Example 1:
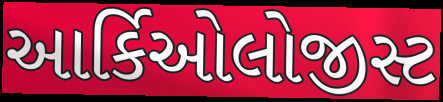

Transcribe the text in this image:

આર્કિઓલોજીસ્ટ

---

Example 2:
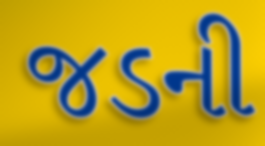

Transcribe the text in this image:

જડની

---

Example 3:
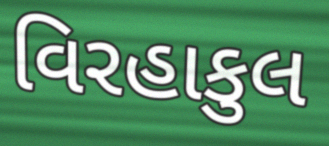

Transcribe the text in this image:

વિરહાકુલ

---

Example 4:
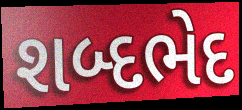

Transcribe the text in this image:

શબ્દભેદ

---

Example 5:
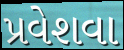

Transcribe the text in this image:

પ્રવેશવા